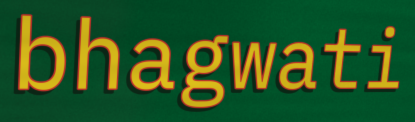
bhagwati